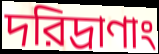
দরিদ্রাণাং